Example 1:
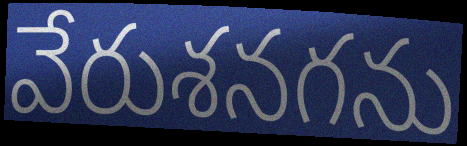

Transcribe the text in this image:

వేరుశనగను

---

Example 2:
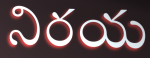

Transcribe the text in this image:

నిరయ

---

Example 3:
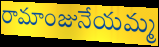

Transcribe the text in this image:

రామాంజునేయమ్మ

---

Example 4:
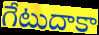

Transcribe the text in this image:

గేటుదాకా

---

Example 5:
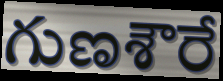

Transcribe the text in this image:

గుణశౌరే